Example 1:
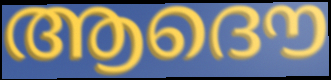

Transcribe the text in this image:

ആദൌ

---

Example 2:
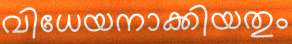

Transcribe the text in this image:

വിധേയനാക്കിയതും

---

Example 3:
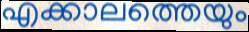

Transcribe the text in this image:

എക്കാലത്തെയും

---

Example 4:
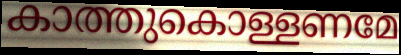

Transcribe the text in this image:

കാത്തുകൊള്ളണമേ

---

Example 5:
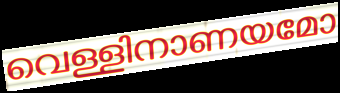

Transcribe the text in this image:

വെള്ളിനാണയമോ